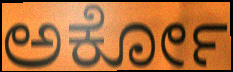
ಅರ್ಕೋ